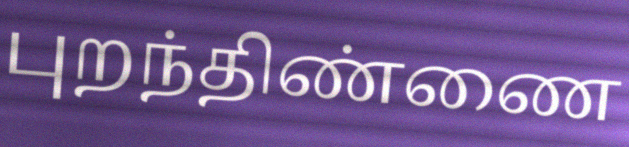
புறந்திண்ணை